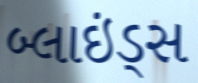
બ્લાઇંડ્સ